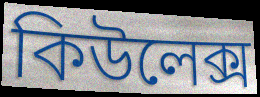
কিউলেক্স